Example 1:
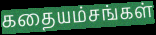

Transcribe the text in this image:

கதையம்சங்கள்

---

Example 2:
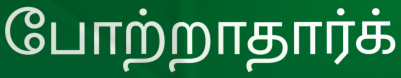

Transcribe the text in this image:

போற்றாதார்க்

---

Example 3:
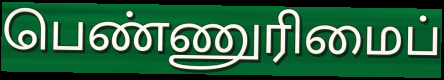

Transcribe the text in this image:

பெண்ணுரிமைப்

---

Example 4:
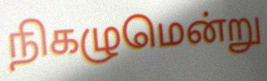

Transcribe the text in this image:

நிகழுமென்று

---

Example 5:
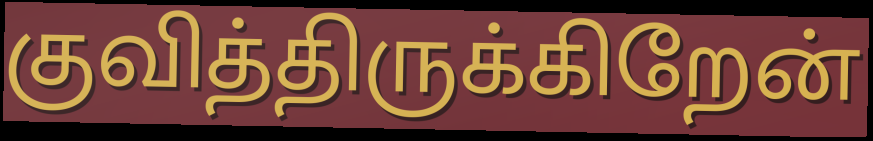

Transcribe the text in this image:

குவித்திருக்கிறேன்